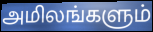
அமிலங்களும்